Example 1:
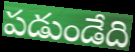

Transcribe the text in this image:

పడుండేది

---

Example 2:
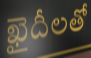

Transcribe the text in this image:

ఖైదీలతో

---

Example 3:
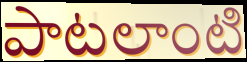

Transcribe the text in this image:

పాటలాంటి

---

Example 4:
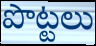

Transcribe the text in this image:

పొట్టలు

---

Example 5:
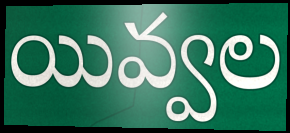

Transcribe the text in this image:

యివ్వల